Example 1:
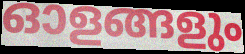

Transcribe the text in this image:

ഓളങ്ങളും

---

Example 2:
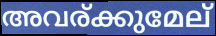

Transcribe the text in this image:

അവര്ക്കുമേല്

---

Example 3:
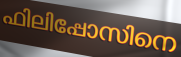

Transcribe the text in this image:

ഫിലിപ്പോസിനെ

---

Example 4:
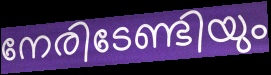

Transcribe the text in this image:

നേരിടേണ്ടിയും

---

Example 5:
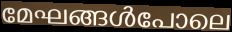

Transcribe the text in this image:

മേഘങ്ങൾപോലെ